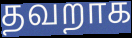
தவறாக